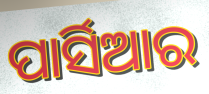
ପାର୍ସିଆର